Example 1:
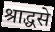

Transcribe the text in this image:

श्राद्धसे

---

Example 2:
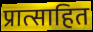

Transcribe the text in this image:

प्रात्साहित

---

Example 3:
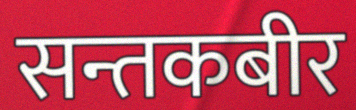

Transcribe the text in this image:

सन्तकबीर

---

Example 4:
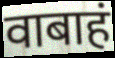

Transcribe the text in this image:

वाबाहं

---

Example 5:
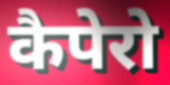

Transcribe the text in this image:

कैपेरो